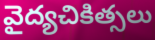
వైద్యచికిత్సలు